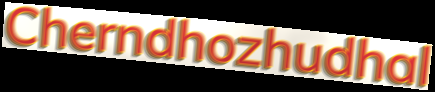
Cherndhozhudhal